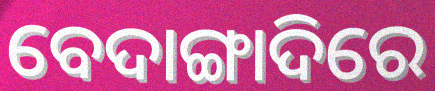
ବେଦାଙ୍ଗାଦିରେ